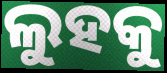
ଲୁହକୁ